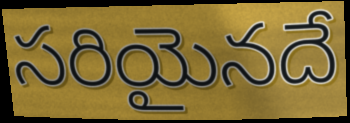
సరియైనదే